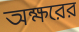
অক্ষরের